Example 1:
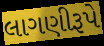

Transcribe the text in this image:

લાગણીરૂપે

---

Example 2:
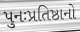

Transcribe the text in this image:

પુનઃપ્રતિષ્ઠાનો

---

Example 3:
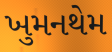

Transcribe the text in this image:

ખુમનથેમ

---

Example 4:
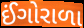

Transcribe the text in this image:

ઈંગોરાળા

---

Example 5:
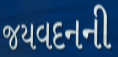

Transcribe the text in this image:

જયવદનની